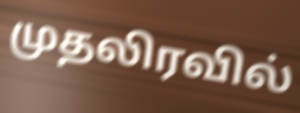
முதலிரவில்